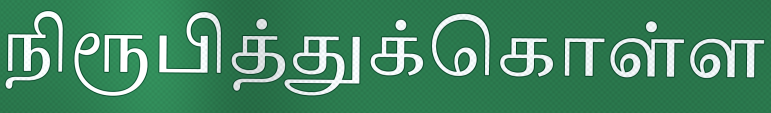
நிரூபித்துக்கொள்ள